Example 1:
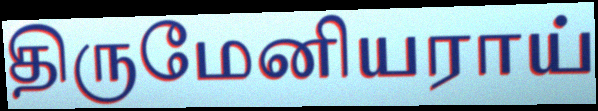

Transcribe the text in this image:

திருமேனியராய்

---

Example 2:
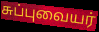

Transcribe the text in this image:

சுப்புவையர்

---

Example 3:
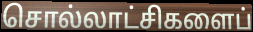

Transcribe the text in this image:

சொல்லாட்சிகளைப்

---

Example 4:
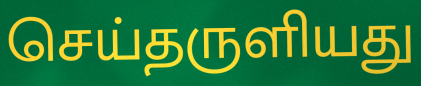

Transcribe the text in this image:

செய்தருளியது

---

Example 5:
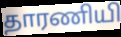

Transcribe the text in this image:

தாரணியி